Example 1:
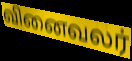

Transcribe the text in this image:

வினைவலர்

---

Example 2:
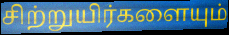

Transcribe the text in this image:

சிற்றுயிர்களையும்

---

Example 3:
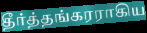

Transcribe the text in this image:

தீர்த்தங்கரராகிய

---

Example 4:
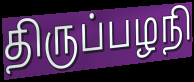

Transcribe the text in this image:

திருப்பழநி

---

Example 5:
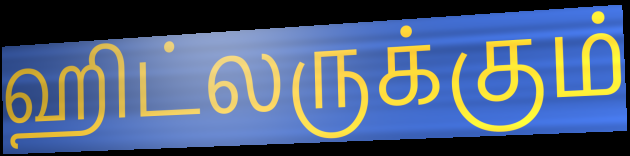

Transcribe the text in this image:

ஹிட்லருக்கும்